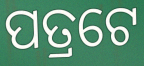
ପତ୍ରଟେ